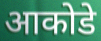
आकोडे